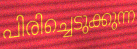
പിരിച്ചെടുക്കുന്ന